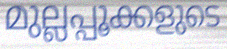
മുല്ലപ്പൂക്കളുടെ